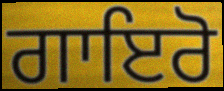
ਗਾਇਰੋ